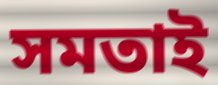
সমতাই